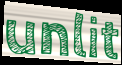
unlit